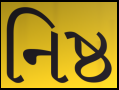
નિષ્ઠ